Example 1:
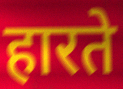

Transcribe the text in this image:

हारते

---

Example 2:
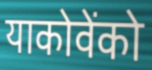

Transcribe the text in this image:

याकोवेंको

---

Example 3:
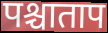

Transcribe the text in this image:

पश्चाताप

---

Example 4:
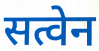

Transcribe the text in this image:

सत्वेन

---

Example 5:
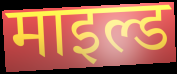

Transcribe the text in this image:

माइल्ड